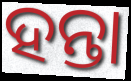
ହନ୍ତା